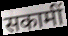
सकामीं